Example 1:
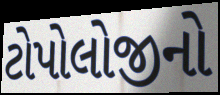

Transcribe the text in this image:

ટોપોલોજીનો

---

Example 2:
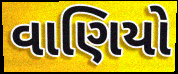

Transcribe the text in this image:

વાણિયો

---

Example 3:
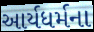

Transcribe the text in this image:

આર્યધર્મના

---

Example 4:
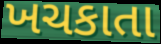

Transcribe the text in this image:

ખચકાતા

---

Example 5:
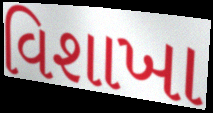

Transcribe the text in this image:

વિશાખા